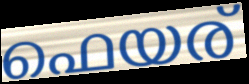
ഫെയര്